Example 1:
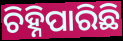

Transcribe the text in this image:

ଚିହ୍ନିପାରିଛି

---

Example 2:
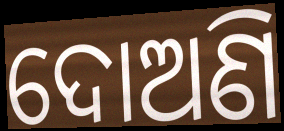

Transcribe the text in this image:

ଦୋଅଣି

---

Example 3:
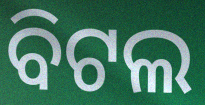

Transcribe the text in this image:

ବିଟଲ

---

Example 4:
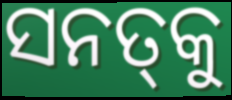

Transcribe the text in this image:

ସନତ୍‍କୁ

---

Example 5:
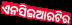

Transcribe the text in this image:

ଏନସିଇଆରଟିର